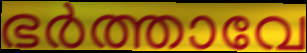
ഭർത്താവേ